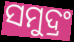
ସମୁଦ୍ରଂ